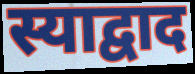
स्याद्वाद